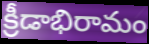
క్రీడాభిరామం